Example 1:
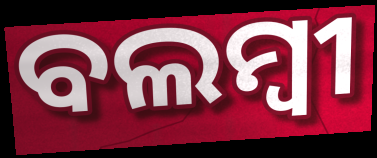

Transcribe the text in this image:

ବଲମ୍ୱୀ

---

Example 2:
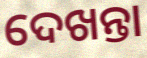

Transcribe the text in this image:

ଦେଖନ୍ତା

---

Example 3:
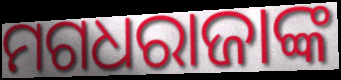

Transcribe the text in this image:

ମଗଧରାଜାଙ୍କ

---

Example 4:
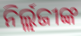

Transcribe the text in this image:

ନିର୍ଲ୍ଲଜୀଙ୍କ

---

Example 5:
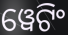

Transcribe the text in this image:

ୱେଟିଂ